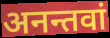
अनन्तवां